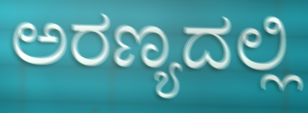
ಅರಣ್ಯದಲ್ಲಿ